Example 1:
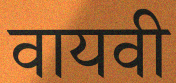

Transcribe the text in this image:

वायवी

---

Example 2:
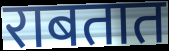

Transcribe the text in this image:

राबतात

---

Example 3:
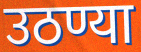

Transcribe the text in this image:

उठण्या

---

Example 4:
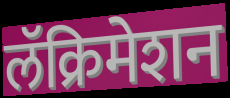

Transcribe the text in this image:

लॅक्रिमेशन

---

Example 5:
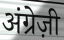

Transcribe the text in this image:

अंग्रेज़ी